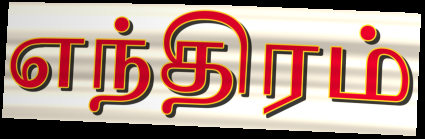
எந்திரம்